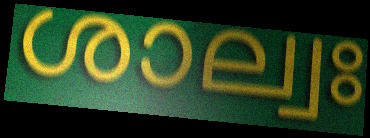
ശാല്വഃ